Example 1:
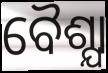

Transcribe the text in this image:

ବୈଶ୍ଯା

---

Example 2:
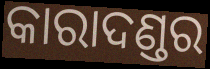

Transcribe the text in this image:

କାରାଦଣ୍ଡର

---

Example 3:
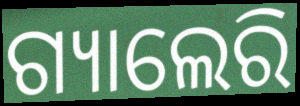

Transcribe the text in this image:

ଗ୍ୟାଲେରି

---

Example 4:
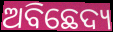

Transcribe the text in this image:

ଅବିଛେଦ୍ୟ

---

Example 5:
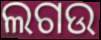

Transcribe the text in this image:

ଲଗଉ